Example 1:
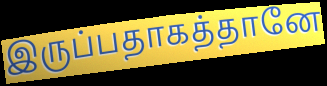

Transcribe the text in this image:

இருப்பதாகத்தானே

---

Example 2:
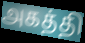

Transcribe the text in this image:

அகத்தி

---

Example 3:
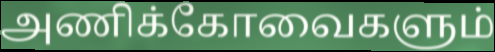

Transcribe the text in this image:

அணிக்கோவைகளும்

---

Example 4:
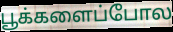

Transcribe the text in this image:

பூக்களைப்போல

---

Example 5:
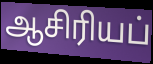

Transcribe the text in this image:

ஆசிரியப்